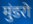
मुंडरो